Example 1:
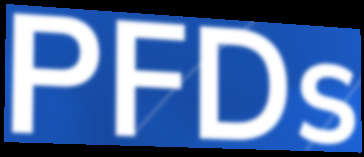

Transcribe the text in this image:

PFDs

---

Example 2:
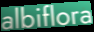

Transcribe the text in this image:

albiflora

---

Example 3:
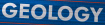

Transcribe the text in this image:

GEOLOGY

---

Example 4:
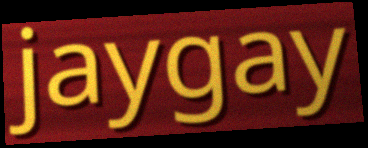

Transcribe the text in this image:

jaygay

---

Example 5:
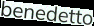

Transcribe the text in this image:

benedetto